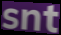
snt